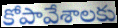
కోపావేశాలకు